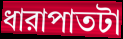
ধারাপাতটা